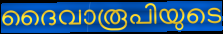
ദൈവാരൂപിയുടെ